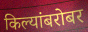
किल्यांबरोबर